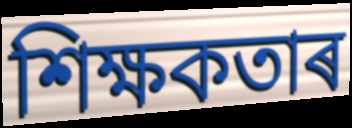
শিক্ষকতাৰ